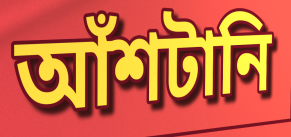
আঁশটানি